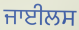
ਜਾਈਲਸ